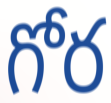
గోర